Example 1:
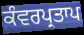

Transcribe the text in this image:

ਕੰਵਰਪ੍ਰਤਾਪ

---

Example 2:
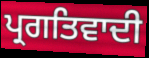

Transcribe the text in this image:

ਪ੍ਰਗਤਿਵਾਦੀ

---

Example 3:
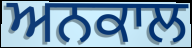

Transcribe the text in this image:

ਅਨਕਾਲ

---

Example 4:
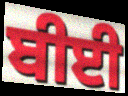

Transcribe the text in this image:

ਬੀਈ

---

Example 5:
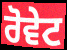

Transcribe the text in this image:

ਰੋਵੇਟ